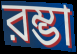
রম্ভা